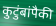
कुटुंबांपैकी